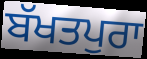
ਬੱਖਤਪੁਰਾ